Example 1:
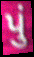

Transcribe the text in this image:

પું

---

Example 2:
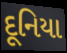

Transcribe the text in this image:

દૂનિયા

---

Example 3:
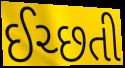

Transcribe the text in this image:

ઈચ્છતી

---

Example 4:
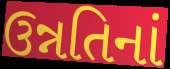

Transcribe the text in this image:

ઉન્નતિનાં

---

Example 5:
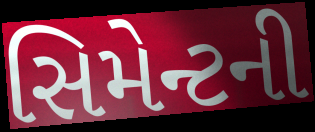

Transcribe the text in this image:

સિમેન્ટની